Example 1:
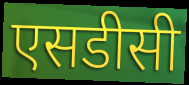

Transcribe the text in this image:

एसडीसी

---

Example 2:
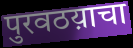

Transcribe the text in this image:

पुरवठय़ाचा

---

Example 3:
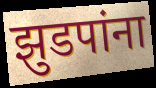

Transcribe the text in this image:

झुडपांना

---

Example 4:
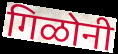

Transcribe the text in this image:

गिळोनी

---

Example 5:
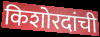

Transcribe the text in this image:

किशोरदांची